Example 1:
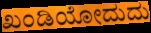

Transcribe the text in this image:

ಖಂಡಿಯೋದುದು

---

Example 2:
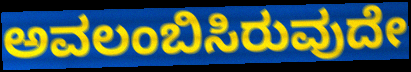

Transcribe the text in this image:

ಅವಲಂಬಿಸಿರುವುದೇ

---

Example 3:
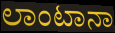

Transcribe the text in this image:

ಲಾಂಟಾನಾ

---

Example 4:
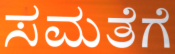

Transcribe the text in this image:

ಸಮತೆಗೆ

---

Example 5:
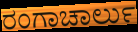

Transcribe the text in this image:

ರಂಗಾಚಾರ್ಲು